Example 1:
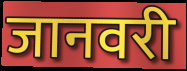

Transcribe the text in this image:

जानवरी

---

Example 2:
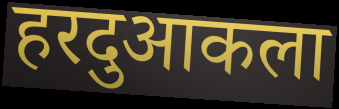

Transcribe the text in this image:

हरदुआकला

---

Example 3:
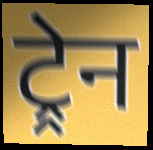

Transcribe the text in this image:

ट्र्रेन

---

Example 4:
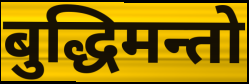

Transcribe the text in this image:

बुद्धिमन्तो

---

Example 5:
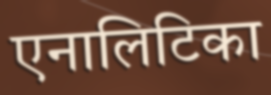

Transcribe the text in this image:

एनालिटिका